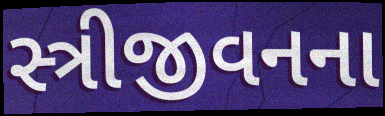
સ્ત્રીજીવનના